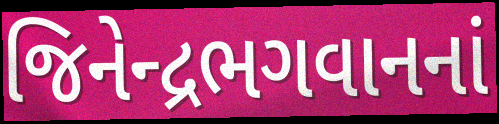
જિનેન્દ્રભગવાનનાં